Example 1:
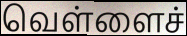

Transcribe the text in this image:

வெள்ளைச்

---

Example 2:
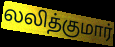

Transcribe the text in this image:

லலித்குமார்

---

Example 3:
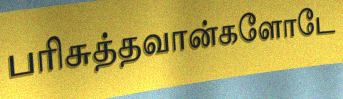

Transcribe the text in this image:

பரிசுத்தவான்களோடே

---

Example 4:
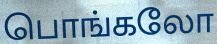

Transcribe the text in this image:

பொங்கலோ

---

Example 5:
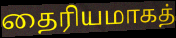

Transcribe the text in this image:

தைரியமாகத்